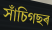
সাঁচিগছৰ